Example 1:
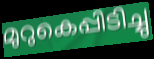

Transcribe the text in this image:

മുറുകെപ്പിടിച്ചു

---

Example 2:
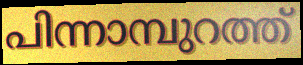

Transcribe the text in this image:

പിന്നാമ്പുറത്ത്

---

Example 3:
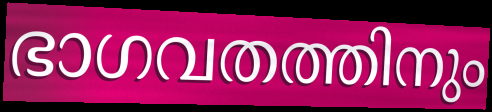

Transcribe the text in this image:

ഭാഗവതത്തിനും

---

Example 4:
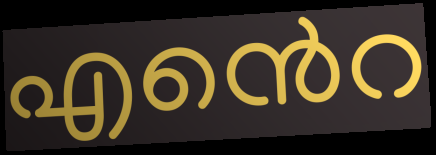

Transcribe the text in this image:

എൻെറ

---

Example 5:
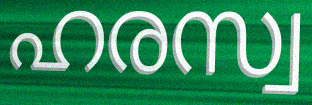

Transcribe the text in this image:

ഹരസ്വ